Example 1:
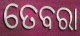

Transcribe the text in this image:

ତେବରା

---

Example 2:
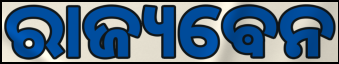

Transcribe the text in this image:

ରାଜ୍ୟଵେନ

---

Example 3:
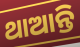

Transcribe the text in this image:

ଥାଆନ୍ତି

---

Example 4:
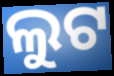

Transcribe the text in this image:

ଲୁଟ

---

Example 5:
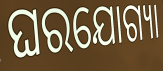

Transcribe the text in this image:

ଘରଯୋଗ୍ୟା